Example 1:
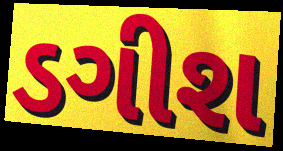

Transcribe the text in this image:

ડગીશ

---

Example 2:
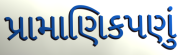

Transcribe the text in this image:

પ્રામાણિકપણું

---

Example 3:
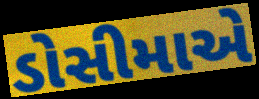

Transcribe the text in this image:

ડોસીમાએ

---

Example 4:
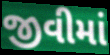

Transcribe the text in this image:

જીવીમાં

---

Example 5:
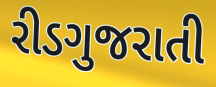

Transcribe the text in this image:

રીડગુજરાતી